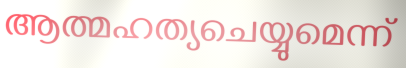
ആത്മഹത്യചെയ്യുമെന്ന്